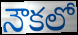
నౌకలో